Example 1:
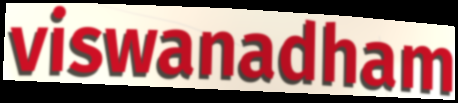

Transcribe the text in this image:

viswanadham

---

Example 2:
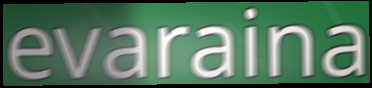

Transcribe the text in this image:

evaraina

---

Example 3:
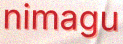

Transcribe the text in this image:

nimagu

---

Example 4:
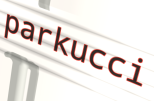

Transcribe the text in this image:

parkucci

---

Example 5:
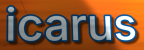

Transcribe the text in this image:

icarus